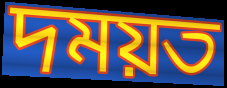
দময়ত